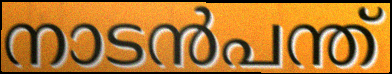
നാടൻപന്ത്